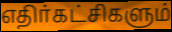
எதிர்கட்சிகளும்